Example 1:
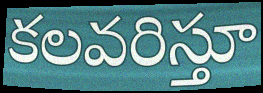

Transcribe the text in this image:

కలవరిస్తూ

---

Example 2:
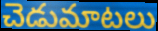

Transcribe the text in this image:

చెడుమాటలు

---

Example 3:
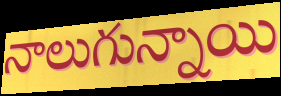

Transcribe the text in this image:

నాలుగున్నాయి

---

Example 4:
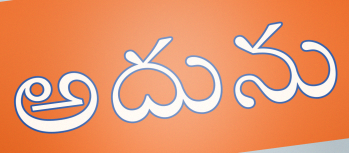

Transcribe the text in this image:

అదును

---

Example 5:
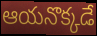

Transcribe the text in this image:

ఆయనొక్కడే